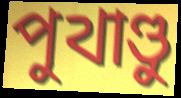
পুথাণ্ডু